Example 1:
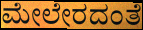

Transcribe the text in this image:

ಮೇಲೇರದಂತೆ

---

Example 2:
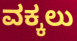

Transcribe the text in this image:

ವಕ್ಕಲು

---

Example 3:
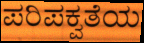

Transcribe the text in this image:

ಪರಿಪಕ್ವತೆಯ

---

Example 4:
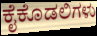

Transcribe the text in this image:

ಕೈಕೊಡಲಿಗಳು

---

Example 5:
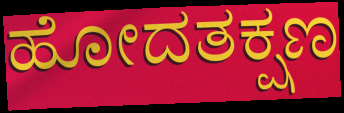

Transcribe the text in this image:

ಹೋದತಕ್ಷಣ